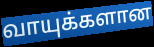
வாயுக்களான